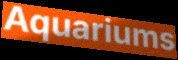
Aquariums